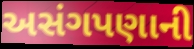
અસંગપણાની